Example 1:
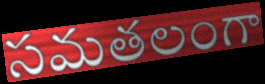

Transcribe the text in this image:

సమతలంగా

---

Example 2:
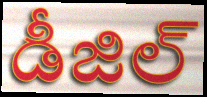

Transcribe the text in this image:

డీజిల్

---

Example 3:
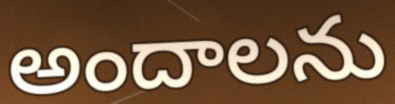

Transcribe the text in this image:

అందాలను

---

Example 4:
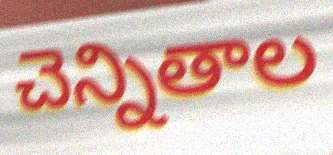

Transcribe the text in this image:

చెన్నితాల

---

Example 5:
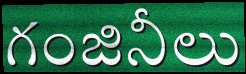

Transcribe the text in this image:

గంజినీలు